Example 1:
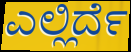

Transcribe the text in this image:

ಎಲ್ಲಿರ್ದೆ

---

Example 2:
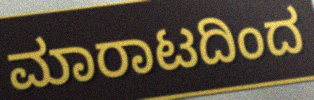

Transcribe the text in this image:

ಮಾರಾಟದಿಂದ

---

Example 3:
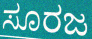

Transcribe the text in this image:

ಸೂರಜ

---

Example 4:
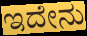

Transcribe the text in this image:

ಇದೇನು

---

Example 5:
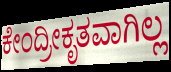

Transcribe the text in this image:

ಕೇಂದ್ರೀಕೃತವಾಗಿಲ್ಲ